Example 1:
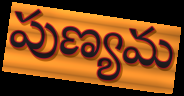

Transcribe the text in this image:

పుణ్యమ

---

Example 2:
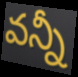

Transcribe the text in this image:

వన్నీ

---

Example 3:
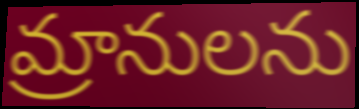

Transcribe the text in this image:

మ్రానులను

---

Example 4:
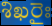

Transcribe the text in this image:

శిఖరైః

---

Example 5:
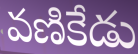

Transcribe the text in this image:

వణికేడు